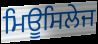
ਮਿਊਸਿਲੇਜ